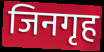
जिनगृह